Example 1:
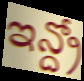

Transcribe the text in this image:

ఇన్ద్రో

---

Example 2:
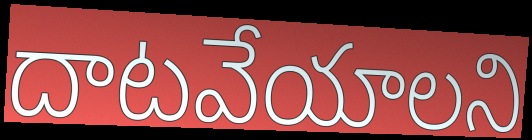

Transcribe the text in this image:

దాటవేయాలని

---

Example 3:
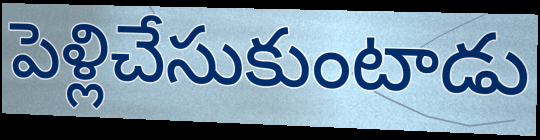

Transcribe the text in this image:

పెళ్లిచేసుకుంటాడు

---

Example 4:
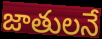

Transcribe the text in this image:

జాతులనే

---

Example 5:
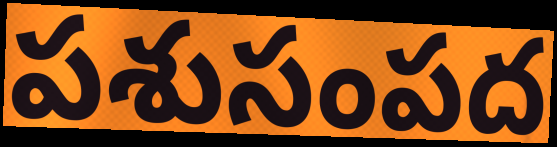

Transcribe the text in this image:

పశుసంపద